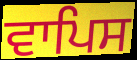
ਵਾਪਿਸ